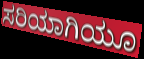
ಸರಿಯಾಗಿಯೂ